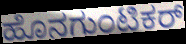
ಹೊನಗುಂಟಿಕರ್